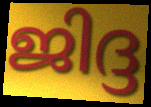
ജിദ്ദ